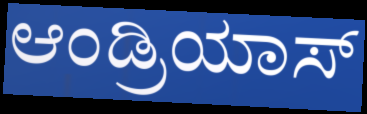
ಆಂಡ್ರಿಯಾಸ್